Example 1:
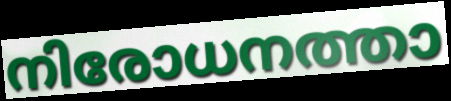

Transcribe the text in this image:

നിരോധനത്താ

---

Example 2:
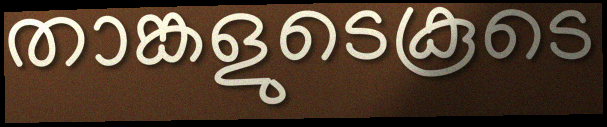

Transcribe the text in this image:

താങ്കളുടെകൂടെ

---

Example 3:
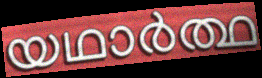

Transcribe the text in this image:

യഥാർത്ഥ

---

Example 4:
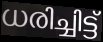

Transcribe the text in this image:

ധരിച്ചിട്ട്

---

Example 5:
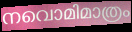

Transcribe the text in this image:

നവൊമിമാത്രം